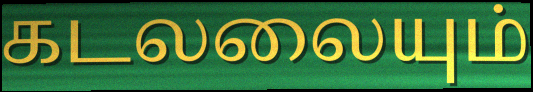
கடலலையும்